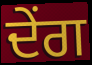
ਦੇਂਗ